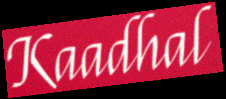
Kaadhal